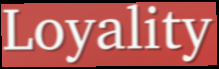
Loyality